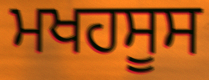
ਮਖਹਸੂਸ